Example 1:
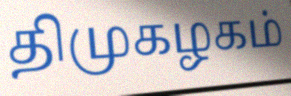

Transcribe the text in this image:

திமுகழகம்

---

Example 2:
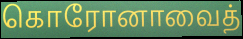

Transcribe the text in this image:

கொரோனாவைத்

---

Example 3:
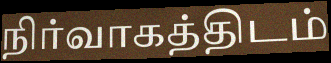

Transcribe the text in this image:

நிர்வாகத்திடம்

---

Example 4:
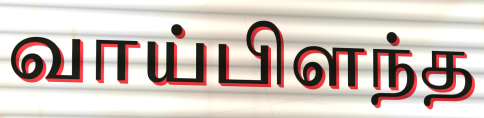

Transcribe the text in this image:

வாய்பிளந்த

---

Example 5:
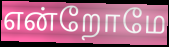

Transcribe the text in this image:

என்றோமே